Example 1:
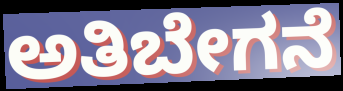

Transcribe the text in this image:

ಅತಿಬೇಗನೆ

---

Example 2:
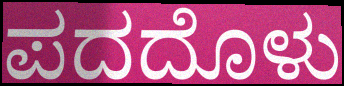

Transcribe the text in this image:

ಪದದೊಳು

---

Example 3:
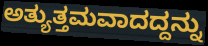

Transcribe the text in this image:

ಅತ್ಯುತ್ತಮವಾದದ್ದನ್ನು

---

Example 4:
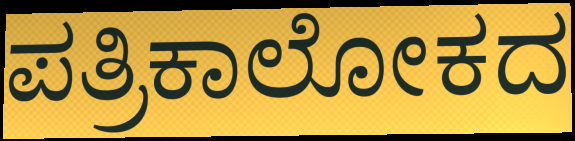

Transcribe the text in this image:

ಪತ್ರಿಕಾಲೋಕದ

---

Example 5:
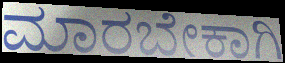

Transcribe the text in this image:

ಮಾರಬೇಕಾಗಿ